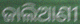
ଜାଲିଆଣୀ